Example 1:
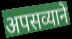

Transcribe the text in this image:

अपसव्याने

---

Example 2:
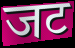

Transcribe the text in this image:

जट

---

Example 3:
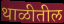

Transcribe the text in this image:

थाळीतील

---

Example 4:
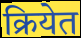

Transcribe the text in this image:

क्रियेत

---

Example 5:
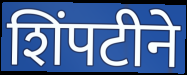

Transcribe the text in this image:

शिंपटीने